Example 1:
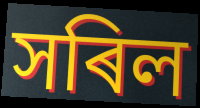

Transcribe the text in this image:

সৰিল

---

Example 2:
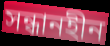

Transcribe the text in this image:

সন্ধানহীন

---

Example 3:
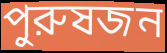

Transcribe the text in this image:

পুৰুষজন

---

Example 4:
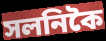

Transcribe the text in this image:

সলনিকৈ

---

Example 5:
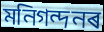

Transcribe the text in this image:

মনিগন্দনৰ